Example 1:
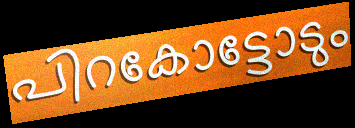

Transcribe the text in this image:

പിറകോട്ടോടും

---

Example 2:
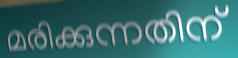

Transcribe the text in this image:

മരിക്കുന്നതിന്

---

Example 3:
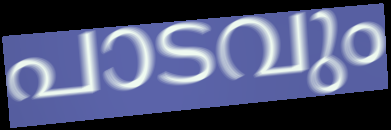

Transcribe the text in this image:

പാടവും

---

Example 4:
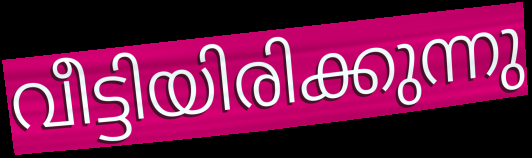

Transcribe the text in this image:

വീട്ടിയിരിക്കുന്നു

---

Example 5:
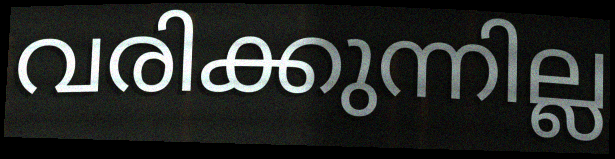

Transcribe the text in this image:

വരിക്കുന്നില്ല